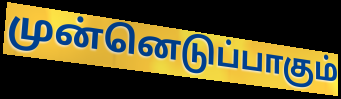
முன்னெடுப்பாகும்